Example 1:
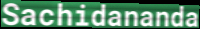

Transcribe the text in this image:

Sachidananda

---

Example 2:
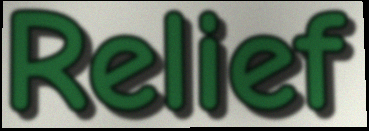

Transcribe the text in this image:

Relief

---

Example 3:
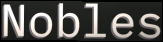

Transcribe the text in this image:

Nobles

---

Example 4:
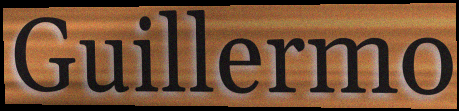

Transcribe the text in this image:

Guillermo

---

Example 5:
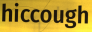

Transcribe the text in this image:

hiccough